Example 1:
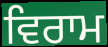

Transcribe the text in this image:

ਵਿਰਾਮ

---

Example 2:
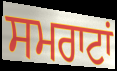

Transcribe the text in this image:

ਸਮਰਾਟਾਂ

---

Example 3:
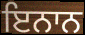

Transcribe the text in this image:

ਇਨਾਨ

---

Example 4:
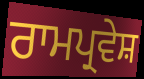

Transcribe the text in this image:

ਰਾਮਪ੍ਰਵੇਸ਼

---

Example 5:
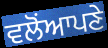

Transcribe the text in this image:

ਵਲੋਂਆਪਣੇ